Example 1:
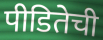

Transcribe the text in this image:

पीडितेची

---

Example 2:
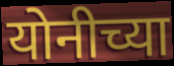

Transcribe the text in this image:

योनीच्या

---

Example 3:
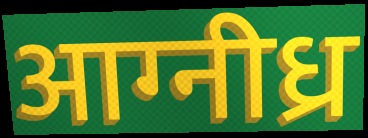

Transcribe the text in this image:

आग्नीध्र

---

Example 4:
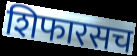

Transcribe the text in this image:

शिफारसच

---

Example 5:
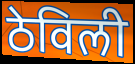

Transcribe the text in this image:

ठेविली